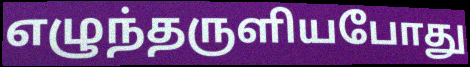
எழுந்தருளியபோது